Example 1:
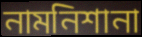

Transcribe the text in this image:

নামনিশানা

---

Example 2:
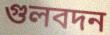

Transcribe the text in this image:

গুলবদন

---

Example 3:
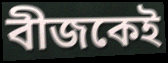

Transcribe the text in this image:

বীজকেই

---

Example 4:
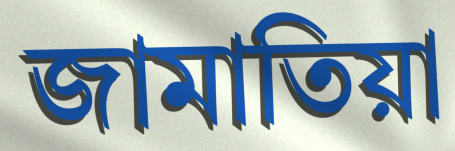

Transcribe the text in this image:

জামাতিয়া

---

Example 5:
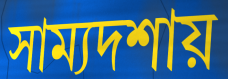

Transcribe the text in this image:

সাম্যদশায়